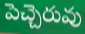
పెచ్చెరువు